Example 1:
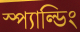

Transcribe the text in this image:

স্প্যাল্ডিং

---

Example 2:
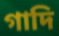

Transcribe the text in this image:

গাদি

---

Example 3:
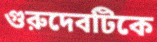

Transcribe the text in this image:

গুরুদেবটিকে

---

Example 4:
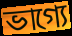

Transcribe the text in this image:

ভাগ্যে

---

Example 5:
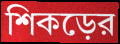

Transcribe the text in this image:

শিকড়ের